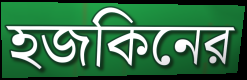
হজকিনের